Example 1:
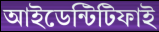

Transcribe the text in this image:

আইডেন্টিটিফাই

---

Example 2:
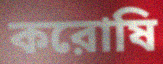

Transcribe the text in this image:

করোষি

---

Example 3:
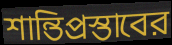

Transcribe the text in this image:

শান্তিপ্রস্তাবের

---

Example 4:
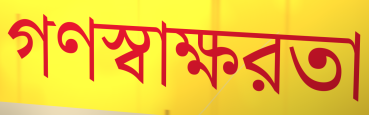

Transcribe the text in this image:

গণস্বাক্ষরতা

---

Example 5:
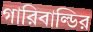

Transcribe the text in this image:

গারিবাল্ডির